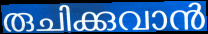
രുചിക്കുവാൻ